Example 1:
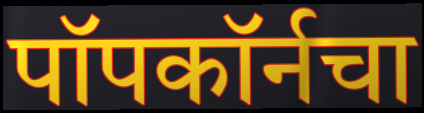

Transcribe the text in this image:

पॉपकॉर्नचा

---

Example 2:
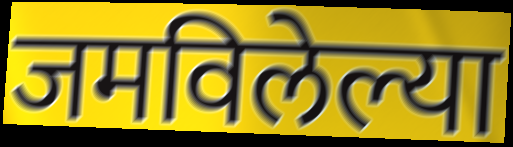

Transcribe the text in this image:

जमविलेल्या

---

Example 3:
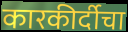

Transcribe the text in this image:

कारकीर्दीचा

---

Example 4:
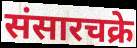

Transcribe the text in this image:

संसारचक्रे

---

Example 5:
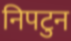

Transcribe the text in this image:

निपटुन